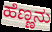
ಹೆಣ್ಣನು